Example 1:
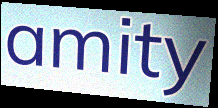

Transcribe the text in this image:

amity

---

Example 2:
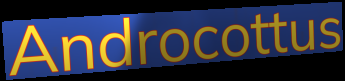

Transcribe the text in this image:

Androcottus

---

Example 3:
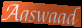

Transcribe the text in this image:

Aaswaad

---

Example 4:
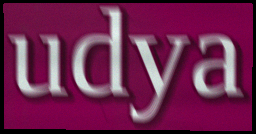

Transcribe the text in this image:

udya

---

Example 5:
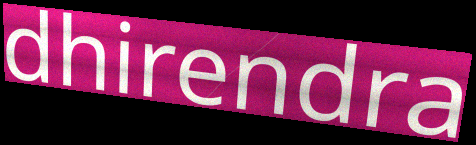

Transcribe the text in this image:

dhirendra